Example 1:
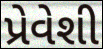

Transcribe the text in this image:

પ્રેવેશી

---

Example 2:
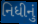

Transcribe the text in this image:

નિધીનું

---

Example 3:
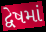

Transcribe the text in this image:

દ્વેષમાં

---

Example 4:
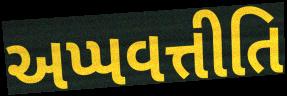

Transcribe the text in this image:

અપ્પવત્તીતિ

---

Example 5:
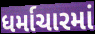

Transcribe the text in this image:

ધર્માચારમાં